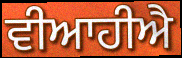
ਵੀਆਹੀਐ